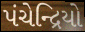
પંચેન્દ્રિયો